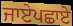
ਜਾਏਪਛਾਏ